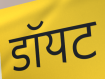
डॉयट